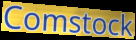
Comstock